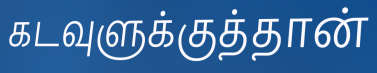
கடவுளுக்குத்தான்